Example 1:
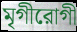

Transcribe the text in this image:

মৃগীরোগী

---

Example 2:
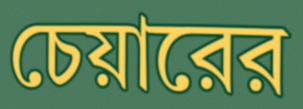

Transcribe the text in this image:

চেয়ারের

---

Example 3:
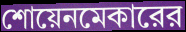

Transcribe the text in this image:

শোয়েনমেকারের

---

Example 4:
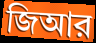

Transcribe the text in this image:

জিআর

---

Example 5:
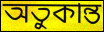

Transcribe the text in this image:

অতুকান্ত